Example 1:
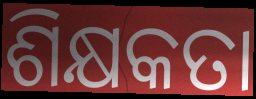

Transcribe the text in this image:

ଶିକ୍ଷକତା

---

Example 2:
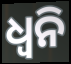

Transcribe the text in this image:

ଧ୍ୱନି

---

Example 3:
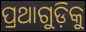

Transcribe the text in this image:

ପ୍ରଥାଗୁଡ଼ିକୁ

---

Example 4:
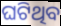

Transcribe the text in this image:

ଘଟିଥିବ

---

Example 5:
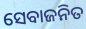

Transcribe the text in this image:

ସେବାଜନିତ